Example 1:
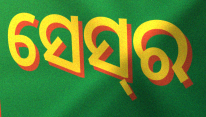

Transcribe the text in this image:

ସେସ୍‌ର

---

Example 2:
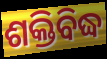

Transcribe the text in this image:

ଶକ୍ତିବିଦ୍ଧ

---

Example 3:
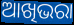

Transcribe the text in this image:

ଆଖିଭରା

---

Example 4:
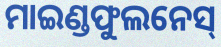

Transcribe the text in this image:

ମାଇଣ୍ଡଫୁଲନେସ୍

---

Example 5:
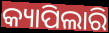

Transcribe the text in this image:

କ୍ୟାପିଲାରି